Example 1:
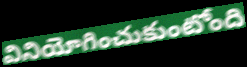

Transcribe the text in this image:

వినియోగించుకుంటోంది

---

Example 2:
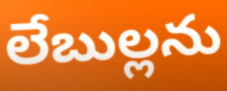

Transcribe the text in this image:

లేబుల్లను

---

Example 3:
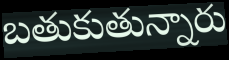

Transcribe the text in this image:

బతుకుతున్నారు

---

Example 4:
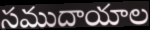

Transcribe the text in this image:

సముదాయాల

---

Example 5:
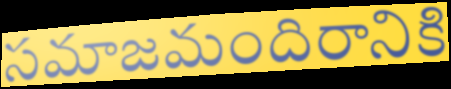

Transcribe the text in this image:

సమాజమందిరానికి